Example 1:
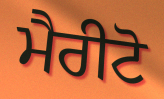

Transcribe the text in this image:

ਮੈਰੀਟੋ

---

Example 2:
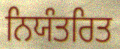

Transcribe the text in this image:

ਨਿਯੰਤਰਿਤ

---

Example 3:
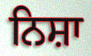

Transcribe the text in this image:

ਨਿਸ਼ਾ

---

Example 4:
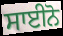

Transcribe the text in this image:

ਸਾਈਨੋ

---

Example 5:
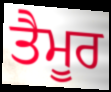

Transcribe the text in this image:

ਤੈਮੂਰ